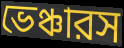
ভেঞ্চারস